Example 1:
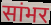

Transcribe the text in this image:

सांभर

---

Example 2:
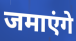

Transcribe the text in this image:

जमाएंगे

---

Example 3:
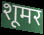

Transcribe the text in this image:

शूमर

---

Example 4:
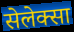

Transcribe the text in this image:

सेलेक्सा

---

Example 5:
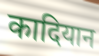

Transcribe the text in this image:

कादियान